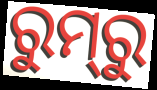
ରୁମ୍‌ରୁ